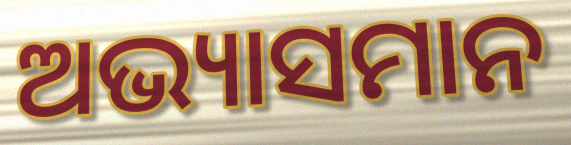
ଅଭ୍ୟାସମାନ